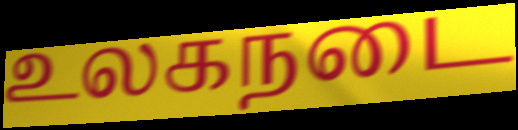
உலகநடை